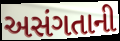
અસંગતાની